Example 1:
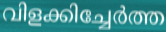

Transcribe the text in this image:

വിളക്കിച്ചേർത്ത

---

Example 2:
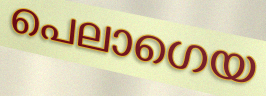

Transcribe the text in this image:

പെലാഗെയ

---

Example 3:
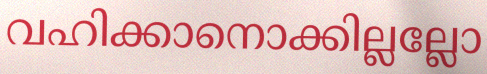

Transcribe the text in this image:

വഹിക്കാനൊക്കില്ലല്ലോ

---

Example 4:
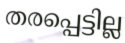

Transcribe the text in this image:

തരപ്പെട്ടില്ല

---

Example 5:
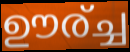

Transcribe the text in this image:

ഊര്ച്ച